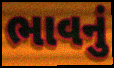
ભાવનું